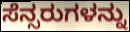
ಸೆನ್ಸರುಗಳನ್ನು